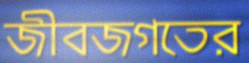
জীবজগতের